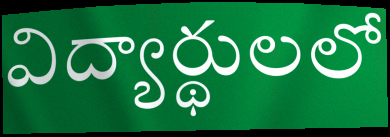
విద్యార్థులలో